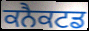
ਕਨੈਕਟਡ